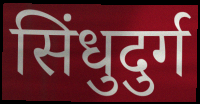
सिंधुदुर्ग